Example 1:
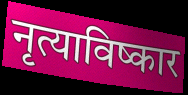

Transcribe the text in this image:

नृत्याविष्कार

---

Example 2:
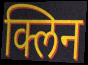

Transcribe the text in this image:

क्लिन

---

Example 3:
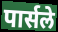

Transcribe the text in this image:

पार्सले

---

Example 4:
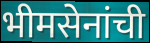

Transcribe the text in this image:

भीमसेनांची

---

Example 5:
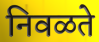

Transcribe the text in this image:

निवळते